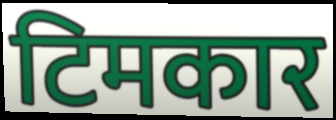
टिमकार